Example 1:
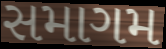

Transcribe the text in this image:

સમાગમ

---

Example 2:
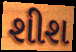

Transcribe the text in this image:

શીશ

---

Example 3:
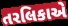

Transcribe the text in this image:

તરલિકાએ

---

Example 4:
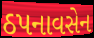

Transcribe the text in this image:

ઠપનાવસેન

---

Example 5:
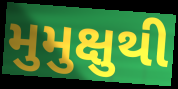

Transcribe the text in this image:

મુમુક્ષુથી